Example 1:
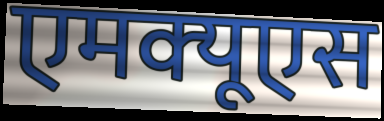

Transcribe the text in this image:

एमक्यूएस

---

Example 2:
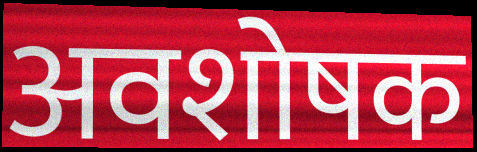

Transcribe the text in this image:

अवशोषक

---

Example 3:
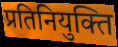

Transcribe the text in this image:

प्रतिनियुक्ति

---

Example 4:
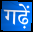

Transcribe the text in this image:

गढ़ें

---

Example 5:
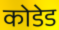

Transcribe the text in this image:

कोडेड